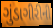
ગુંડાગીરીની